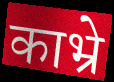
काभ्रे